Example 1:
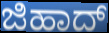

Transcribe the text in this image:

ಜಿಹಾದ್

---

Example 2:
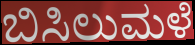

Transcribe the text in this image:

ಬಿಸಿಲುಮಳೆ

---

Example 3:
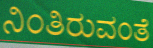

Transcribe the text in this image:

ನಿಂತಿರುವಂತೆ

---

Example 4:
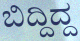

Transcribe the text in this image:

ಬಿದ್ದಿದ್ದ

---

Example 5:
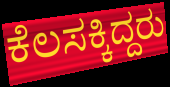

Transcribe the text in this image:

ಕೆಲಸಕ್ಕಿದ್ದರು